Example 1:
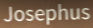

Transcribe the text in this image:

Josephus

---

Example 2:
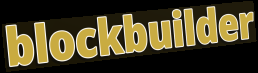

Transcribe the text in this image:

blockbuilder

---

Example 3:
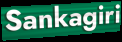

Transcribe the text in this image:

Sankagiri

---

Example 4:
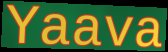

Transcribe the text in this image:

Yaava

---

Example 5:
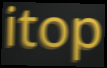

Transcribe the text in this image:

itop